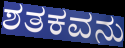
ಶತಕವನು